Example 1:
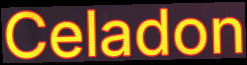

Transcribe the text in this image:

Celadon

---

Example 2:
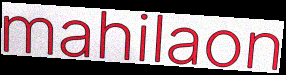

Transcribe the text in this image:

mahilaon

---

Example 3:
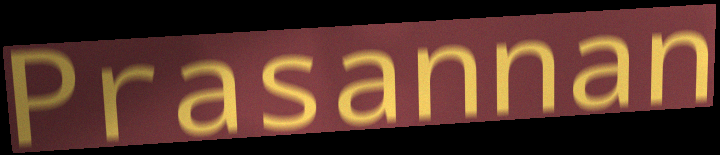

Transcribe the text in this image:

Prasannan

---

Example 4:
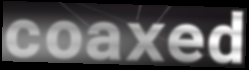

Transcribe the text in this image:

coaxed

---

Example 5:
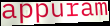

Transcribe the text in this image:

appuram